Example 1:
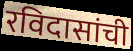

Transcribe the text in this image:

रविदासांची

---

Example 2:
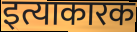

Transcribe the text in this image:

इत्याकारक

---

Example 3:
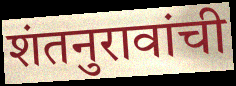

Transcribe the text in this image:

शंतनुरावांची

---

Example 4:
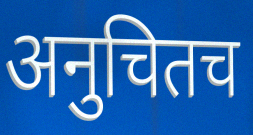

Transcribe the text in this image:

अनुचितच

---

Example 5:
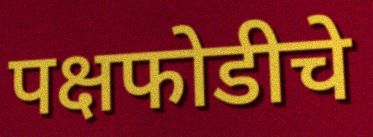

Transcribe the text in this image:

पक्षफोडीचे